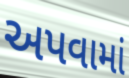
અપવામાં